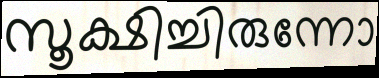
സൂക്ഷിച്ചിരുന്നോ